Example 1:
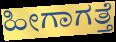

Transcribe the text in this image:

ಹೀಗಾಗತ್ತೆ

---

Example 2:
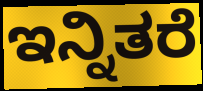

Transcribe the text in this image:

ಇನ್ನಿತರೆ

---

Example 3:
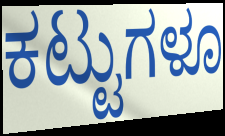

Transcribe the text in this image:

ಕಟ್ಟುಗಳೂ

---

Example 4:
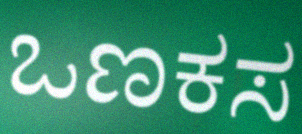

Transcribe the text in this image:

ಒಣಕಸ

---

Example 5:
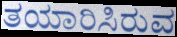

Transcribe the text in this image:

ತಯಾರಿಸಿರುವ